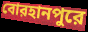
বোরহানপুরে